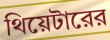
থিয়েটারের